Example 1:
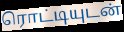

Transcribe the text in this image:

ரொட்டியுடன்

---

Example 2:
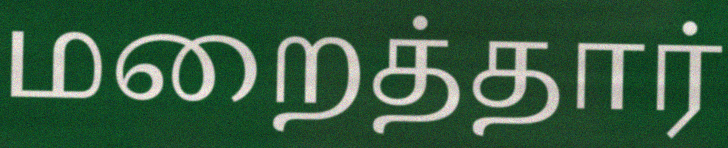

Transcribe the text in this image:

மறைத்தார்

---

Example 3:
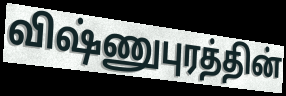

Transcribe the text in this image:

விஷ்ணுபுரத்தின்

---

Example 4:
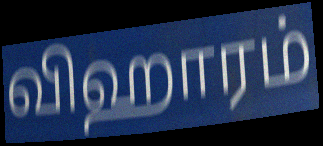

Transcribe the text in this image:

விஹாரம்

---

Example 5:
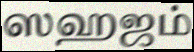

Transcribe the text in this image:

ஸஹஜம்